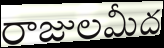
రాజులమీద